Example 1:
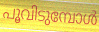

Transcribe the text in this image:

പൂവിടുമ്പോൾ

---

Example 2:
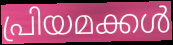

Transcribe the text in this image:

പ്രിയമക്കൾ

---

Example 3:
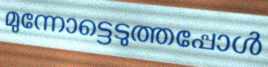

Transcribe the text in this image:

മുന്നോട്ടെടുത്തപ്പോൾ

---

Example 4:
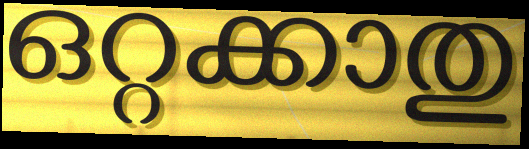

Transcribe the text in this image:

ഒറ്റക്കാതു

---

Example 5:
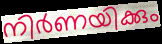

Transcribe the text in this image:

നിർണയിക്കും